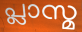
പ്ലാസ്മ